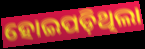
ହୋଇପଡ଼ିଥିଲା